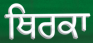
ਥਿਰਕਾ